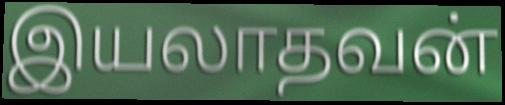
இயலாதவன்